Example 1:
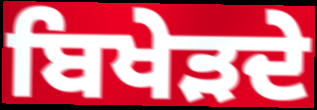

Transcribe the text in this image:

ਬਿਖੇੜਦੇ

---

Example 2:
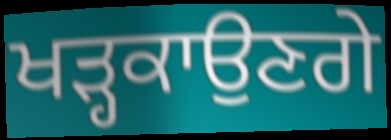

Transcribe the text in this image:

ਖੜ੍ਹਕਾਉਣਗੇ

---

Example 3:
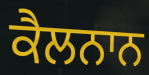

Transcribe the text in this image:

ਕੈਲਨਾਨ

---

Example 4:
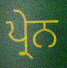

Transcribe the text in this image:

ਪ੍ਰੇਨ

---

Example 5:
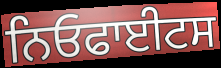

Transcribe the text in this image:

ਨਿਓਫਾਈਟਸ